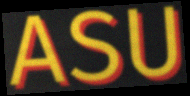
ASU